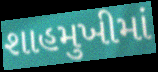
શાહમુખીમાં